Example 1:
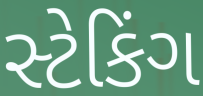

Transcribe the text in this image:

સ્ટેકિંગ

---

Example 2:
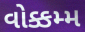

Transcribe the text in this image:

વોક્કમ્મ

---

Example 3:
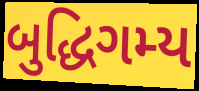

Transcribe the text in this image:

બુદ્ધિગમ્ય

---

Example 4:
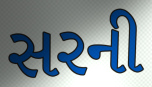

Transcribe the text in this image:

સરની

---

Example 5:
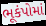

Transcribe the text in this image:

ભૂકંપોમાં